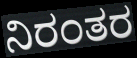
ನಿರಂತರ